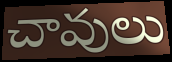
చావులు